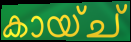
കായ്ച്